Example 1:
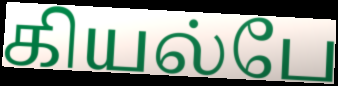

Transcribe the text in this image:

கியல்பே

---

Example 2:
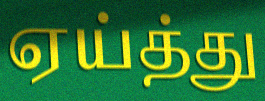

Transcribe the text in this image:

ஏய்த்து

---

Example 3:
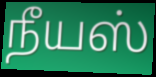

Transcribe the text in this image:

நீயஸ்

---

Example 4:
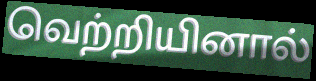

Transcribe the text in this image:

வெற்றியினால்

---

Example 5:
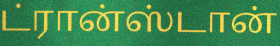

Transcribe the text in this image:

ட்ரான்ஸ்டான்